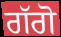
ਗੱਗੋ